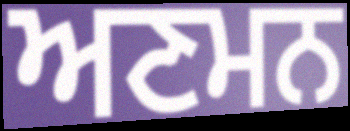
ਅਣਮਨ